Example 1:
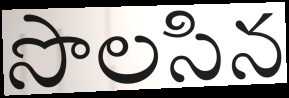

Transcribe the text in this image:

సొలసిన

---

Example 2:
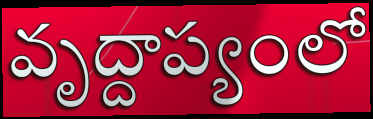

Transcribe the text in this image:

వృద్దాప్యంలో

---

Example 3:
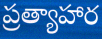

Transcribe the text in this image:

ప్రత్యాహార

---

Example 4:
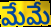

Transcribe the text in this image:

మేమే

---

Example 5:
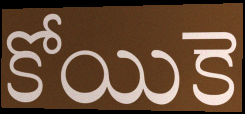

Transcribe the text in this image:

కోయికె